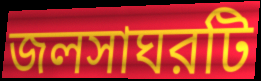
জলসাঘরটি